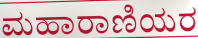
ಮಹಾರಾಣಿಯರ